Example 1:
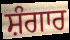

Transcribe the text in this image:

ਸ਼ੰਗਾਰ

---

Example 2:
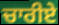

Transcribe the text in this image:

ਚਾਰੀਏ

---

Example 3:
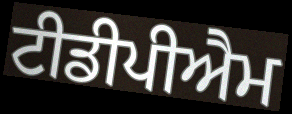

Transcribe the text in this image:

ਟੀਡੀਪੀਐਮ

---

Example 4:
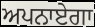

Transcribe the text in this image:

ਅਪਨਾਏਗਾ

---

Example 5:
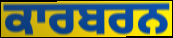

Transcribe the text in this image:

ਕਾਰਬਰਨ